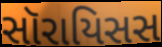
સૉરાયિસસ